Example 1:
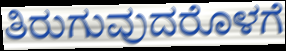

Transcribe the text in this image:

ತಿರುಗುವುದರೊಳಗೆ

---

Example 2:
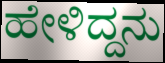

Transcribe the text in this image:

ಹೇಳಿದ್ದನು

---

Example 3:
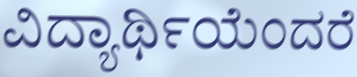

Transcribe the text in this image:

ವಿದ್ಯಾರ್ಥಿಯೆಂದರೆ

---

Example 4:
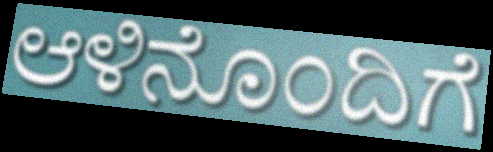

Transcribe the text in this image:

ಆಳಿನೊಂದಿಗೆ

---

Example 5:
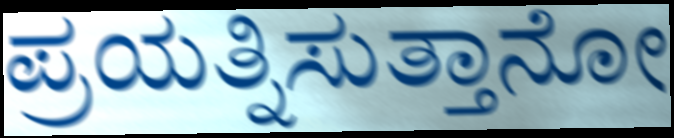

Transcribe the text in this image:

ಪ್ರಯತ್ನಿಸುತ್ತಾನೋ